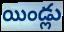
యిండ్లు